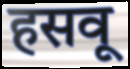
हसवू